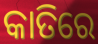
କାତିରେ